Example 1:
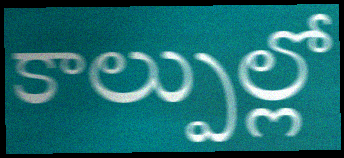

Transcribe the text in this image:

కాల్పుల్లో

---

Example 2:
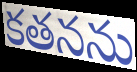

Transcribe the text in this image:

కతనను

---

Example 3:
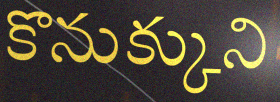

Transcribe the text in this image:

కొనుక్కుని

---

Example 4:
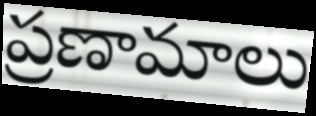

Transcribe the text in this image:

ప్రణామాలు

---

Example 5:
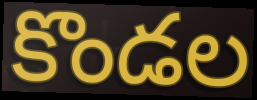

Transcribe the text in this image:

కొండల